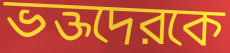
ভক্তদেরকে